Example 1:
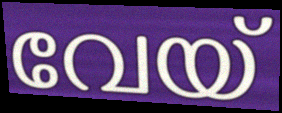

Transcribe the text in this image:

വേയ്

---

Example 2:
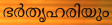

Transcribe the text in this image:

ഭർതൃഹരിയും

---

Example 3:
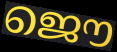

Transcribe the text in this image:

ജൌ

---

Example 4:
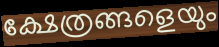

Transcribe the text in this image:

ക്ഷേത്രങ്ങളെയും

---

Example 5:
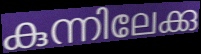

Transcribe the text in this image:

കുന്നിലേക്കു